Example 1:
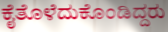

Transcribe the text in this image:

ಕೈತೊಳೆದುಕೊಂಡಿದ್ದರು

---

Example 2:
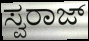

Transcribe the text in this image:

ಸ್ವರಾಜ್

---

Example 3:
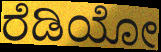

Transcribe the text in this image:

ರೆಡಿಯೋ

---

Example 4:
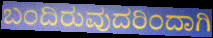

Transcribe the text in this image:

ಬಂದಿರುವುದರಿಂದಾಗಿ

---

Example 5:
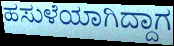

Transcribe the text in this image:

ಹಸುಳೆಯಾಗಿದ್ದಾಗ